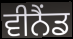
ਵੀਨੈਂਡ